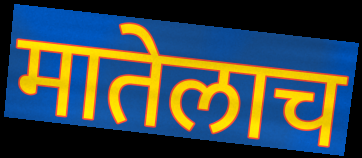
मातेलाच